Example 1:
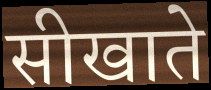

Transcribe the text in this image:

सीखाते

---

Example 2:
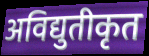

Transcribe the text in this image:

अविद्युतीकृत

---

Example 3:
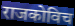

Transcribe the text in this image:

राजकोविच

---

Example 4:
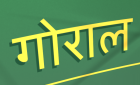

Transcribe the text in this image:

गोराल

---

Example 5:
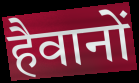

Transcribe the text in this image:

हैवानों